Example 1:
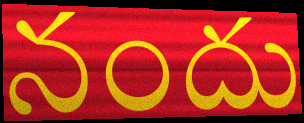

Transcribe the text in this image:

నందు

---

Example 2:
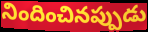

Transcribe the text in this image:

నిందించినప్పుడు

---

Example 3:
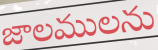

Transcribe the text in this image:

జాలములను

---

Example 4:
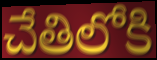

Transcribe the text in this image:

చేతిలోకి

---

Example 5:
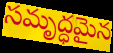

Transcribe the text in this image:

సమృద్ధమైన